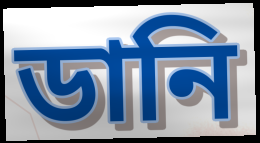
ডানি